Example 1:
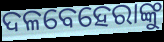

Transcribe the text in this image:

ଦଳବେହେରାଙ୍କୁ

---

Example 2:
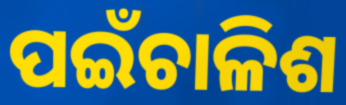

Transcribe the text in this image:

ପଇଁଚାଳିଶ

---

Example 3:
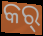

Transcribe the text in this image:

କର୍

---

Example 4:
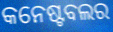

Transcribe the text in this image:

କନେଷ୍ଟବଲର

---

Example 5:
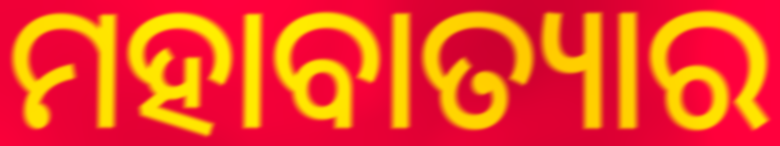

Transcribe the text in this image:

ମହାବାତ୍ୟାର